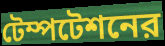
টেম্পটেশনের